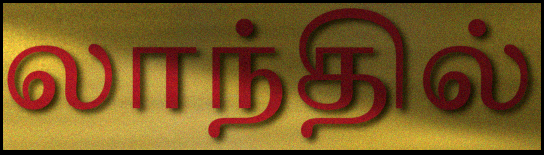
லாந்தில்